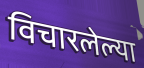
विचारलेल्या